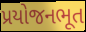
પ્રયોજનભૂત